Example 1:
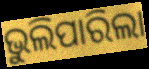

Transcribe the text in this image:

ଭୁଲିପାରିଲା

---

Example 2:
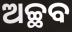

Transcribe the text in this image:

ଅଚ୍ଛବ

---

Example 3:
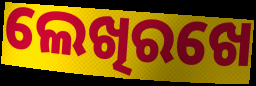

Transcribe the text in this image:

ଲେଖିରଖେ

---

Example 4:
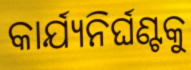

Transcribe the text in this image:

କାର୍ଯ୍ୟନିର୍ଘଣ୍ଟକୁ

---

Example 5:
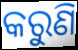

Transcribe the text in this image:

କରୁଣି